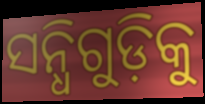
ସନ୍ଧିଗୁଡ଼ିକୁ